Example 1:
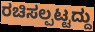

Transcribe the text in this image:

ರಚಿಸಲ್ಪಟ್ಟದ್ದು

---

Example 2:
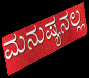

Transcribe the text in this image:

ಮನುಷ್ಯನಲ್ಲ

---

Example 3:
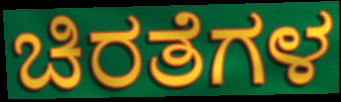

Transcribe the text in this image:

ಚಿರತೆಗಳ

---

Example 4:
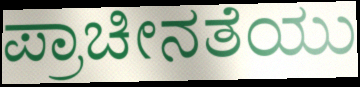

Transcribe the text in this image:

ಪ್ರಾಚೀನತೆಯು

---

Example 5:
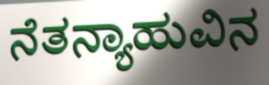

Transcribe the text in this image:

ನೆತನ್ಯಾಹುವಿನ